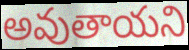
అవుతాయని